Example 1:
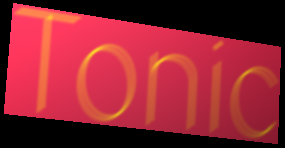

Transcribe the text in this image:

Tonic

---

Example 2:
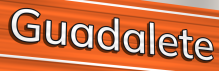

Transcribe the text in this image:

Guadalete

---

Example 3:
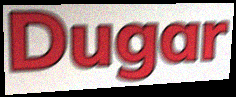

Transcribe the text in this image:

Dugar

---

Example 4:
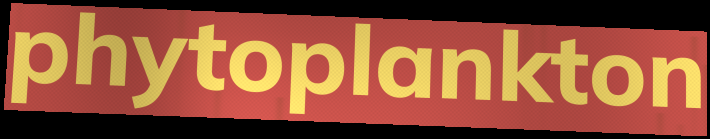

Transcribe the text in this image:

phytoplankton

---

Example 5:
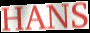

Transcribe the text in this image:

HANS